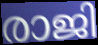
രാജി